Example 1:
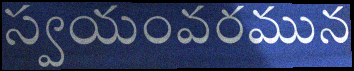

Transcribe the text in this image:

స్వయంవరమున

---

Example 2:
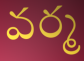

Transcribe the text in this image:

వర్మ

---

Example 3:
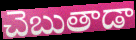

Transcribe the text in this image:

చెబుతాడా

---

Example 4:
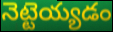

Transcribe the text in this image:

నెట్టెయ్యడం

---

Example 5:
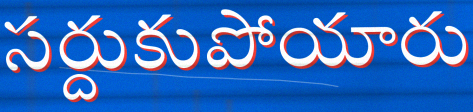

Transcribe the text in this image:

సర్దుకుపోయారు